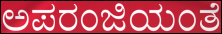
ಅಪರಂಜಿಯಂತೆ